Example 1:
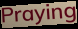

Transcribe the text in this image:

Praying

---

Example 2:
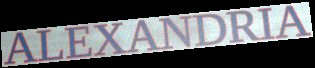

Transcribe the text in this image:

ALEXANDRIA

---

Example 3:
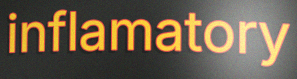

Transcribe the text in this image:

inflamatory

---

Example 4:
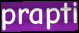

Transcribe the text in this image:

prapti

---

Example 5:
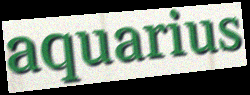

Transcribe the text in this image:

aquarius